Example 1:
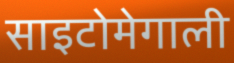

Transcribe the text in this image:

साइटोमेगाली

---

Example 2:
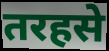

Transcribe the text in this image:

तरहसे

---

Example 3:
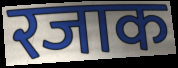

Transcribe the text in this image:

रजाक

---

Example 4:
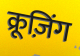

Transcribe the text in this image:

क्रूज़िंग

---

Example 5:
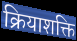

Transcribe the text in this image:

क्रियाशक्ति